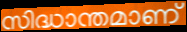
സിദ്ധാന്തമാണ്